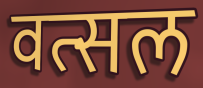
वत्सल